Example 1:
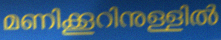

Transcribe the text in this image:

മണിക്കൂറിനുള്ളിൽ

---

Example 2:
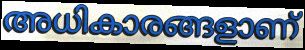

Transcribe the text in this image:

അധികാരങ്ങളാണ്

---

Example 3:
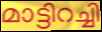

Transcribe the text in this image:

മാട്ടിറച്ചി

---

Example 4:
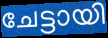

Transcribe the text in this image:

ചേട്ടായി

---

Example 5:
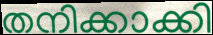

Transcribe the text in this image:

തനിക്കാക്കി